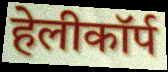
हेलीकॉर्प